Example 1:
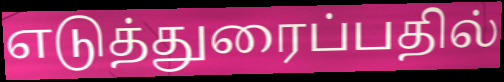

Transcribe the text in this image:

எடுத்துரைப்பதில்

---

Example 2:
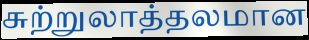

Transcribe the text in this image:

சுற்றுலாத்தலமான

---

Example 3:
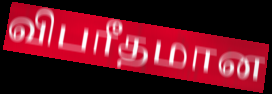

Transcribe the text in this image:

விபரீதமான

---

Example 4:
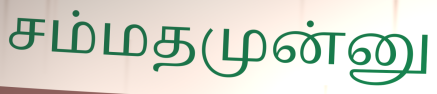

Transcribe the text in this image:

சம்மதமுன்னு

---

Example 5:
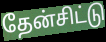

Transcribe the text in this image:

தேன்சிட்டு